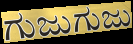
ಗುಜುಗುಜು